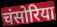
चंसोरिया